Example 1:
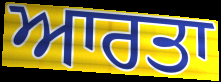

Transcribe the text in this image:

ਆਰਤਾ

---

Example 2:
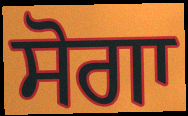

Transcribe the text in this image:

ਸੋਗਾ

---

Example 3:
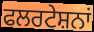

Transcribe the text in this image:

ਫਲਰਟੇਸ਼ਨਾਂ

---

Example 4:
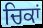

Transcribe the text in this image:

ਚਿਕਾਂ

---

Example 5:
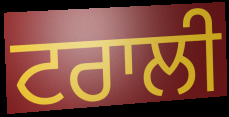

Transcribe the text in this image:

ਟਰਾਲੀ